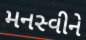
મનસ્વીને